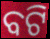
ବଟି